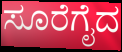
ಸೂರೆಗೈದ